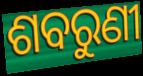
ଶବରୁଣୀ